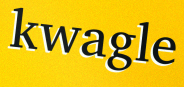
kwagle